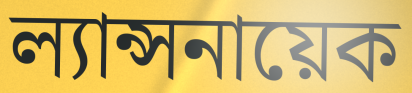
ল্যান্সনায়েক